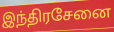
இந்திரசேனை